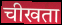
चीखता